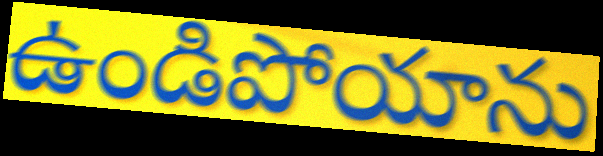
ఉండిపోయాను